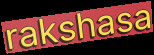
rakshasa